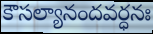
కౌసల్యానందవర్ధనః